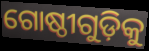
ଗୋଷ୍ଠୀଗୁଡ଼ିକୁ